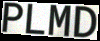
PLMD